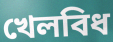
খেলবিধ